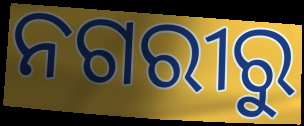
ନଗରୀରୁ